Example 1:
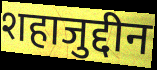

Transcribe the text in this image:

शहाजुद्दीन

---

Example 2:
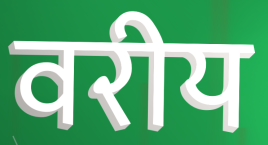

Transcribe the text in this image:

वरीय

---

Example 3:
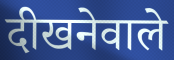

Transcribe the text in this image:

दीखनेवाले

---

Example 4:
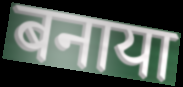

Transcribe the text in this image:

बनाया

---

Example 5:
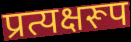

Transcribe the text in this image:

प्रत्यक्षरूप